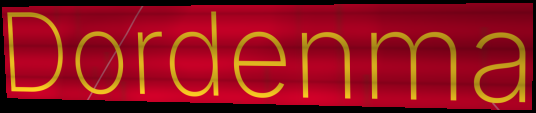
Dordenma